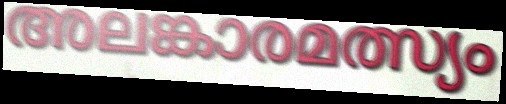
അലങ്കാരമത്സ്യം